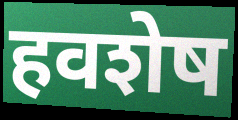
हवशेष